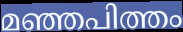
മഞ്ഞപിത്തം